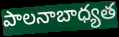
పాలనాబాధ్యత